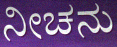
ನೀಚನು